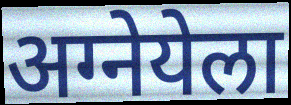
अग्नेयेला